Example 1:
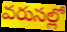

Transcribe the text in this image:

వరుసల్లో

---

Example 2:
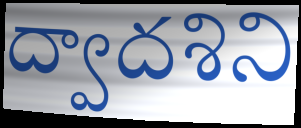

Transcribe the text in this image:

ద్వాదశిని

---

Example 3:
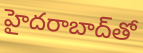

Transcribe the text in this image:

హైదరాబాద్‌తో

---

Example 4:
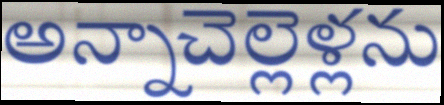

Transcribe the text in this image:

అన్నాచెల్లెళ్లను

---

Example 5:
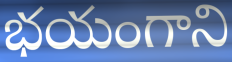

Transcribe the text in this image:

భయంగాని